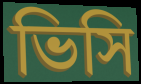
ভিসি